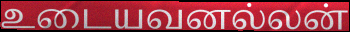
உடையவனல்லன்